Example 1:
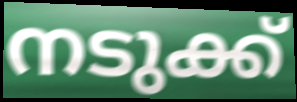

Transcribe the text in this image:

നടുക്ക്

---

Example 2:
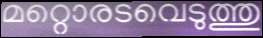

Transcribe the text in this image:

മറ്റൊരടവെടുത്തു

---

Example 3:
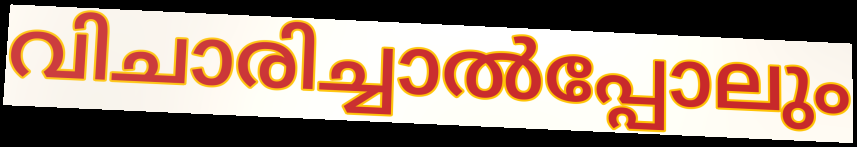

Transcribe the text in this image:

വിചാരിച്ചാൽപ്പോലും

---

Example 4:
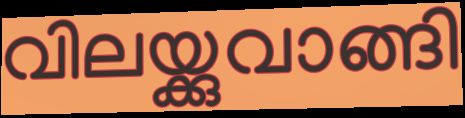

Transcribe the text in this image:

വിലയ്ക്കുവാങ്ങി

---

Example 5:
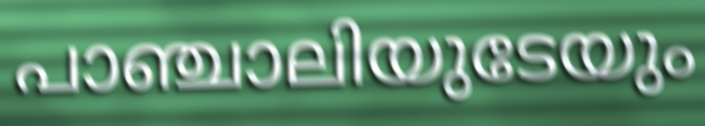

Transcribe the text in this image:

പാഞ്ചാലിയുടേയും